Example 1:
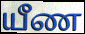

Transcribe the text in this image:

யீண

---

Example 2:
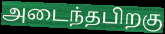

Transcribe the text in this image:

அடைந்தபிறகு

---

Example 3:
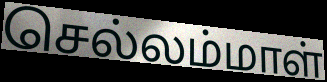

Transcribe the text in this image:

செல்லம்மாள்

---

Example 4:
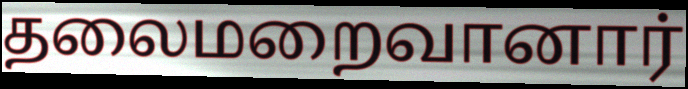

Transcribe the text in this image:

தலைமறைவானார்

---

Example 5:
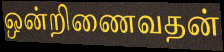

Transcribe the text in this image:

ஒன்றிணைவதன்